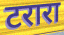
टरारा